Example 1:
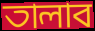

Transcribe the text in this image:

তালাব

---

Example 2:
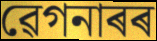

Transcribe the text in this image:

ৱেগনাৰৰ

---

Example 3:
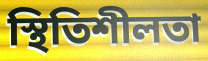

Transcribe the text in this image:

স্থিতিশীলতা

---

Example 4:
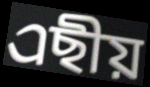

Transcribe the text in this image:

এছীয়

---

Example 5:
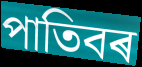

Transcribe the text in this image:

পাতিবৰ